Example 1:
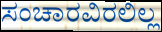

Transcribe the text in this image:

ಸಂಚಾರವಿರಲಿಲ್ಲ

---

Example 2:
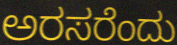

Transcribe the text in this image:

ಅರಸರೆಂದು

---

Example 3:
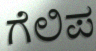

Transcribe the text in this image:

ಗೆಲಿಪ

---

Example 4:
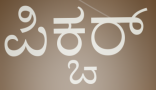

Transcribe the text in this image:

ಪಿಕ್ಚರ್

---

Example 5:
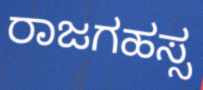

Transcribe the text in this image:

ರಾಜಗಹಸ್ಸ